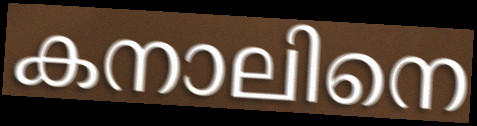
കനാലിനെ